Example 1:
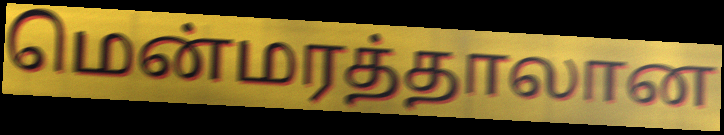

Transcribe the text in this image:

மென்மரத்தாலான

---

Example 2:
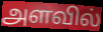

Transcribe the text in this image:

அளவில்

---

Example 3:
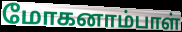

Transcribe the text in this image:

மோகனாம்பாள்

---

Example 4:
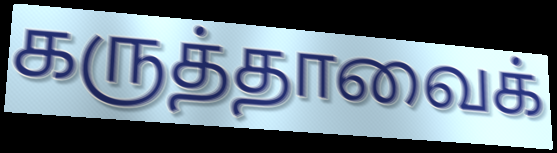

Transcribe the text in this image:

கருத்தாவைக்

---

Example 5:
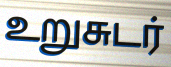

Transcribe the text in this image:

உறுசுடர்